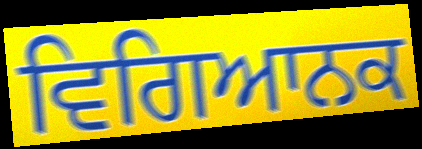
ਵਿਗਿਆਨਕ